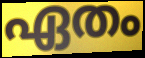
ഏതം